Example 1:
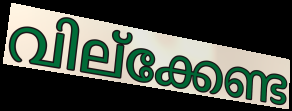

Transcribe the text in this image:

വില്ക്കേണ്ട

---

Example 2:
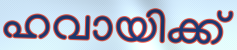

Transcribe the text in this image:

ഹവായിക്ക്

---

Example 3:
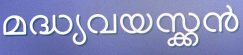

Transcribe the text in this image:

മദ്ധ്യവയസ്ക്കൻ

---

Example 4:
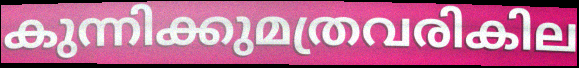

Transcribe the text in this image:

കുന്നിക്കുമത്രവരികില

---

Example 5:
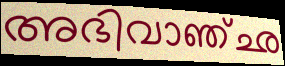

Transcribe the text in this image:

അഭിവാഞ്ഛ